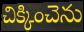
చిక్కించెను